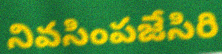
నివసింపజేసిరి